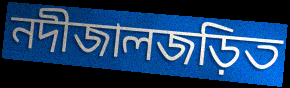
নদীজালজড়িত